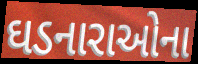
ઘડનારાઓના